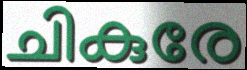
ചികുരേ